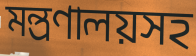
মন্ত্রণালয়সহ